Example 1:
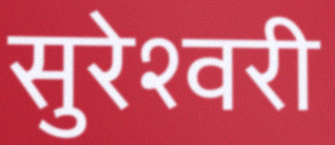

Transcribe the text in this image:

सुरेश्वरी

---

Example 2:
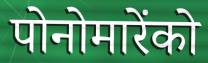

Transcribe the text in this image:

पोनोमारेंको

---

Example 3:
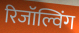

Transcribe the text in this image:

रिजॉल्विंग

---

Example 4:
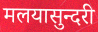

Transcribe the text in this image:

मलयासुन्दरी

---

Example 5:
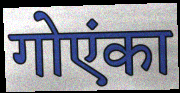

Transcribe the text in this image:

गोएंका